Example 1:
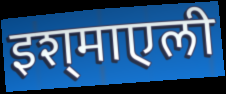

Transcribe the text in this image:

इश्माएली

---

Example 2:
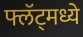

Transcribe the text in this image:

फ्लॅट्मध्ये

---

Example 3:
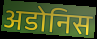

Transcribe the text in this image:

अडोनिस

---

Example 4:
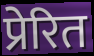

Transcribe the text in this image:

प्रेरित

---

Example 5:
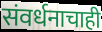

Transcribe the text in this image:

संवर्धनाचाही